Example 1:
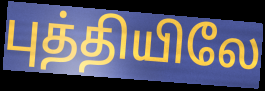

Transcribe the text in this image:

புத்தியிலே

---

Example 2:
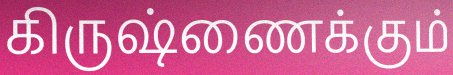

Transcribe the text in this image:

கிருஷ்ணைக்கும்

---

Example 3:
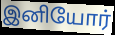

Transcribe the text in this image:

இனியோர்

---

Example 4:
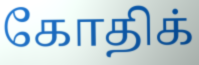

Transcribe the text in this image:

கோதிக்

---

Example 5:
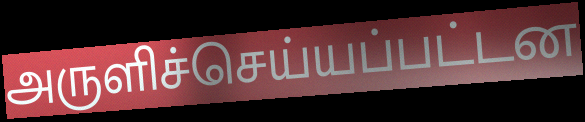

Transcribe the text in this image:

அருளிச்செய்யப்பட்டன